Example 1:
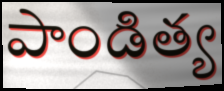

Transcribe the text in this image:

పాండిత్య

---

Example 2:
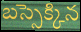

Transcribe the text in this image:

బస్సెక్కిన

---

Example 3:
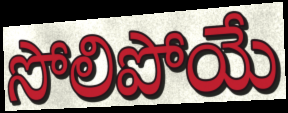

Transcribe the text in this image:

సోలిపోయే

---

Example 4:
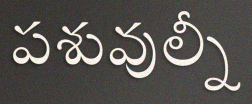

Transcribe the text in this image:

పశువుల్నీ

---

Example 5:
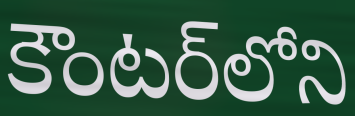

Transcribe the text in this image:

కౌంటర్‌లోని